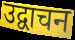
उद्वाचन